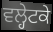
ਵਲ੍ਹੇਟਕੇ